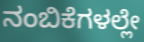
ನಂಬಿಕೆಗಳಲ್ಲೇ